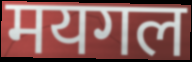
मयगल